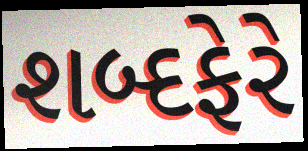
શબ્દફેરે